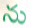
ను